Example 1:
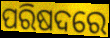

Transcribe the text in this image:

ପରିଷଦରେ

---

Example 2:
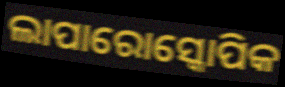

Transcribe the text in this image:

ଲାପାରୋସ୍କୋପିକ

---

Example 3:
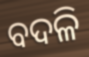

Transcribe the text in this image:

ବଦଳି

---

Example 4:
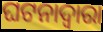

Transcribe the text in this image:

ଘଟନାଦ୍ୱାରା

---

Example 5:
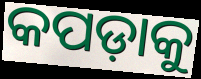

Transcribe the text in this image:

କପଡ଼ାକୁ